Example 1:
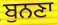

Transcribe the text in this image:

ਬੁਨਣਾ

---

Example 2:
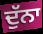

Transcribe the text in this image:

ਦੁੱਨਾ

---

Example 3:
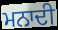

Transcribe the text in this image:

ਮਨਾਦੀ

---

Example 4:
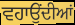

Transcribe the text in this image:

ਵਹਾਉਂਦੀਆਂ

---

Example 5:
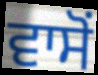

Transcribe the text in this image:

ਵਾਸੋਂ